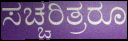
ಸಚ್ಚರಿತ್ರರೂ